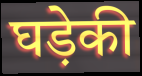
घड़ेकी